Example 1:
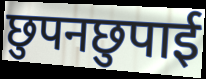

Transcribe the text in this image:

छुपनछुपाई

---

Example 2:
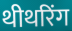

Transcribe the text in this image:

थीथरिंग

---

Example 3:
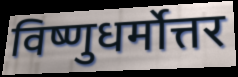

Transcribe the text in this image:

विष्णुधर्मोत्तर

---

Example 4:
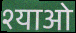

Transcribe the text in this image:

श्याओ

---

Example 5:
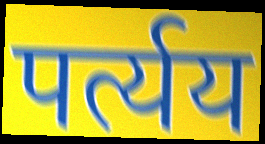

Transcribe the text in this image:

पर्त्यय